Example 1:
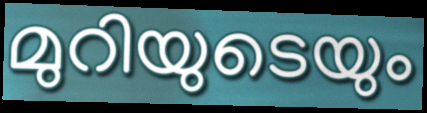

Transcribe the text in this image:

മുറിയുടെയും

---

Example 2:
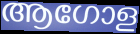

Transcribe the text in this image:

ആഗോള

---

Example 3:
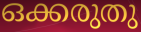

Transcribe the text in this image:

ഒക്കരുതു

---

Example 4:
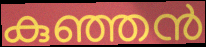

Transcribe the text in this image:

കുഞ്ഞൻ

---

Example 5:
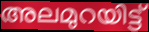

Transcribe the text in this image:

അലമുറയിട്ട്